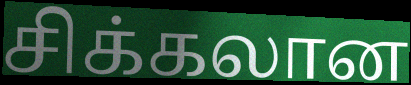
சிக்கலான